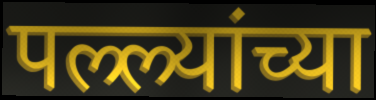
पल्ल्यांच्या